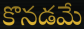
కొనడమే